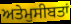
ਅਤੇਮੁਸੀਬਤਾਂ